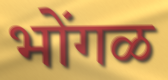
भोंगळ